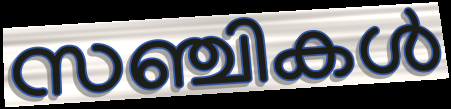
സഞ്ചികൾ